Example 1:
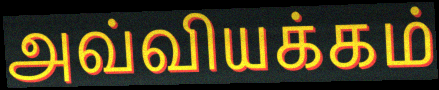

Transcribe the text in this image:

அவ்வியக்கம்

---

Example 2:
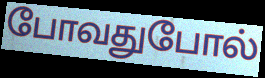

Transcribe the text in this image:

போவதுபோல்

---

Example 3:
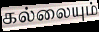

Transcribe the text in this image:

கல்லையும்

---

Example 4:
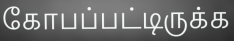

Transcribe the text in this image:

கோபப்பட்டிருக்க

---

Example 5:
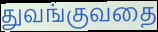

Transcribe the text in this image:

துவங்குவதை